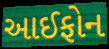
આઈફોન